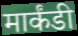
मार्कंडी